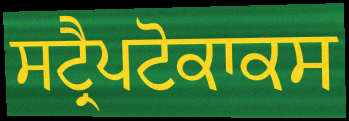
ਸਟ੍ਰੈਪਟੋਕਾਕਸ